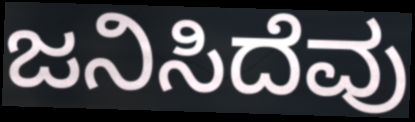
ಜನಿಸಿದೆವು